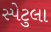
સ્પેટુલા